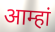
आम्हां